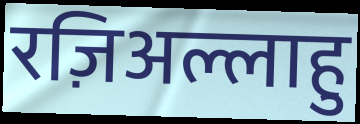
रज़िअल्लाहु